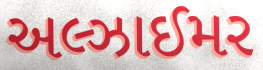
અલ્ઝાઈમર